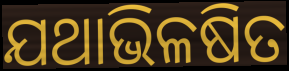
ଯଥାଭିଳଷିତ